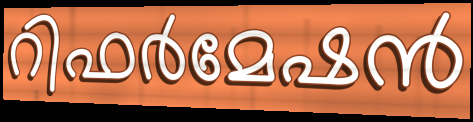
റിഫർമേഷൻ